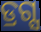
ଡ୍ରଗ୍ସ